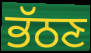
ਭੱਠਣ